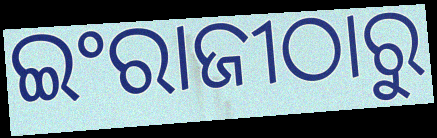
ଇଂରାଜୀଠାରୁ